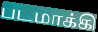
படமாக்கி